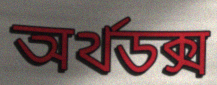
অর্থডক্স